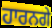
ਹਾਰਨਗੇ